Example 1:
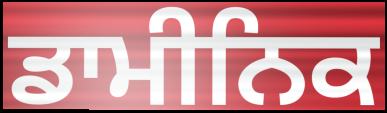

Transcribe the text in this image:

ਡਾਮੀਨਿਕ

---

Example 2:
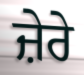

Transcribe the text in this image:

ਜ਼ੇਰੇ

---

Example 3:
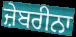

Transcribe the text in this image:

ਜ਼ੇਬਰੀਨਾ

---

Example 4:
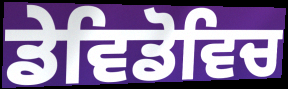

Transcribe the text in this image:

ਡੇਵਿਡੋਵਿਚ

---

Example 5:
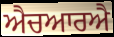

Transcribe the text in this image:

ਐਚਆਰਐ